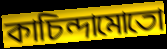
কাচিন্দামোতো